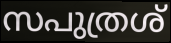
സപുത്രശ്